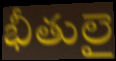
భీతులై